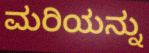
ಮರಿಯನ್ನು